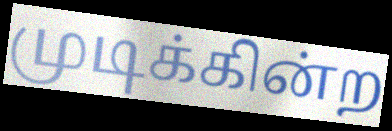
முடிக்கின்ற